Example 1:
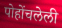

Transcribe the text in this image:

पोहोंचलेली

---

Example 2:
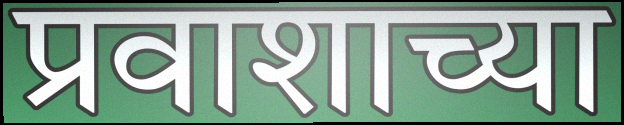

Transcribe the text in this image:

प्रवाशाच्या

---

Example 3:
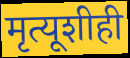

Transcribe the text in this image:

मृत्यूशीही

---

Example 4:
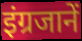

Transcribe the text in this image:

इंग्रजानें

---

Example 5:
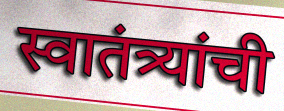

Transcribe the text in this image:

स्वातंत्र्यांची